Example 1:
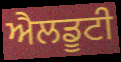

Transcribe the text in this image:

ਐਲਡੂਟੀ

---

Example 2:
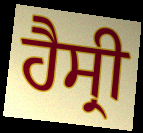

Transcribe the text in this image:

ਹੈਸ੍ਰੀ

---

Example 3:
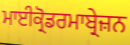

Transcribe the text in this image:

ਮਾਈਕ੍ਰੋਡਰਮਾਬ੍ਰੇਜ਼ਨ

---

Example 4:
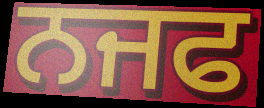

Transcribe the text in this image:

ਨਜਫ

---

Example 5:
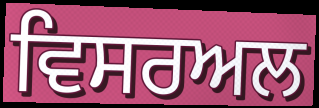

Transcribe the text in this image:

ਵਿਸਰਅਲ